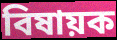
বিষায়ক